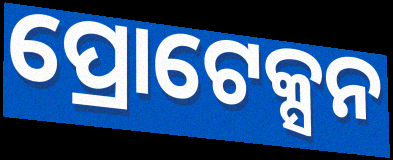
ପ୍ରୋଟେକ୍ସନ